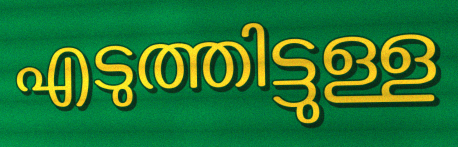
എടുത്തിട്ടുള്ള